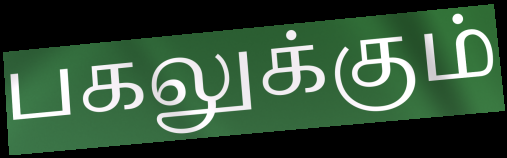
பகலுக்கும்